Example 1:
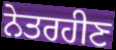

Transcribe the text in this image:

ਨੇਤਰਹੀਣ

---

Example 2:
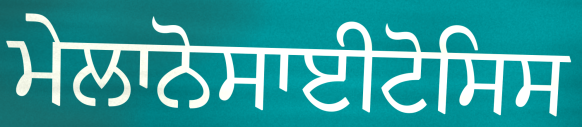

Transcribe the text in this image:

ਮੇਲਾਨੋਸਾਈਟੋਸਿਸ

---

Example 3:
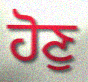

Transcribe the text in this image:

ਹੋਣੁ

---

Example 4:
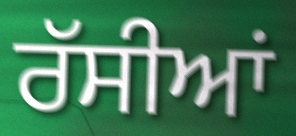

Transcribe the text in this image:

ਰੱਸੀਆਂ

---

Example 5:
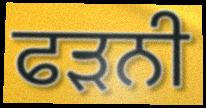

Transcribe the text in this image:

ਫੜਨੀ